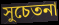
সুচেতনা